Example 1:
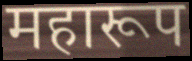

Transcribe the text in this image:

महारूप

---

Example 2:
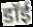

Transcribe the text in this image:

डॉई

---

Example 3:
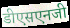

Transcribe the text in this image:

डीएसएनजी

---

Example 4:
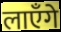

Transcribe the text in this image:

लाएँगे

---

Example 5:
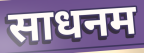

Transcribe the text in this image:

साधनम